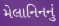
મેલાનિનનું